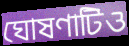
ঘোষণাটিও